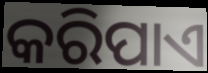
କରିପାଏ